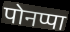
पोनप्पा